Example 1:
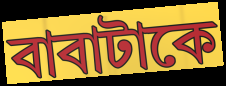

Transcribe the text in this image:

বাবাটাকে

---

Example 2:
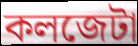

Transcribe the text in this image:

কলজেটা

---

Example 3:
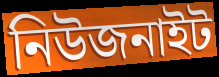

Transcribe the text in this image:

নিউজনাইট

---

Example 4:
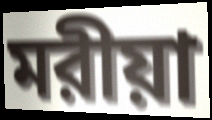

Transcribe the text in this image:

মরীয়া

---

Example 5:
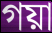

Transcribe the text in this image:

গয়া